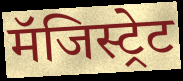
मॅजिस्ट्रेट